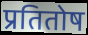
प्रतितोष